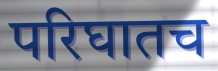
परिघातच